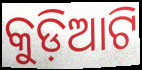
କୁଡ଼ିଆଟି